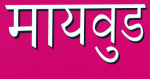
मायवुड